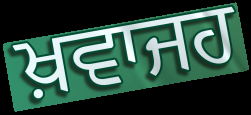
ਖ਼ਵਾਜਹ